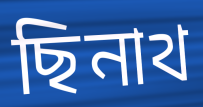
ছিনাথ